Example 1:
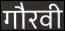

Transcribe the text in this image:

गौरवी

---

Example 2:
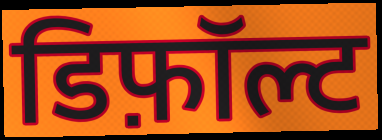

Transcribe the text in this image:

डिफ़ॉल्ट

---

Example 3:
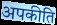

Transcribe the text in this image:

अपकीति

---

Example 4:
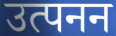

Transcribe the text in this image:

उत्पनन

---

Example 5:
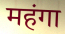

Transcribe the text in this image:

महंगा